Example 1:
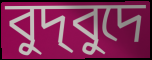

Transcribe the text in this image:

বুদ্‌বুদে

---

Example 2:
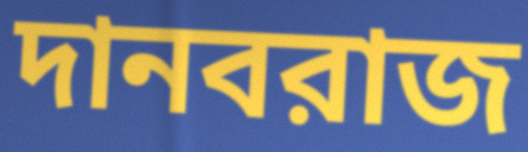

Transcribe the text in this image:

দানবরাজ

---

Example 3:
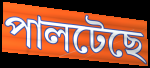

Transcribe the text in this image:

পালটেছে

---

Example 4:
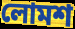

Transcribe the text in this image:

লোমশ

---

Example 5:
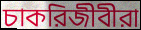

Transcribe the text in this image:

চাকরিজীবীরা